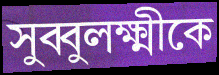
সুব্বুলক্ষ্মীকে